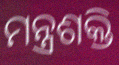
ମନ୍ତ୍ରଶକ୍ତି